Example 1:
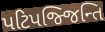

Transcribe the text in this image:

પટિપજ્જિન્તિ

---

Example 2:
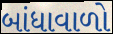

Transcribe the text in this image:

બાંધાવાળો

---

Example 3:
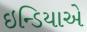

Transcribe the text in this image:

ઇન્ડિયાએ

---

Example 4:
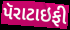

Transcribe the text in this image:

પૅરાટાઇફી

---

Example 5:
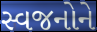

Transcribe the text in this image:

સ્વજનોને